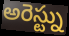
అరెస్ట్ను